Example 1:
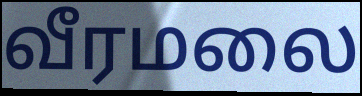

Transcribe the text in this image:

வீரமலை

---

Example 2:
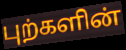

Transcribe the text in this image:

புற்களின்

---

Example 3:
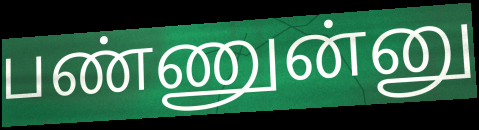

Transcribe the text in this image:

பண்ணுன்னு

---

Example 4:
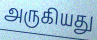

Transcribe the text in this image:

அருகியது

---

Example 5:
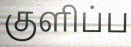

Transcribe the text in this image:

குளிப்ப